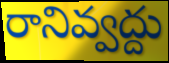
రానివ్వద్దు